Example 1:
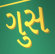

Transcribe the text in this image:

ગુસ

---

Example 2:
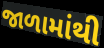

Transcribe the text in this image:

જાળામાંથી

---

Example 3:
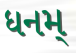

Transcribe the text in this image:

ધનમ્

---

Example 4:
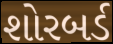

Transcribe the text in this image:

શોરબર્ડ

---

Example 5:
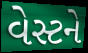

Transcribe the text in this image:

વેસ્ટને